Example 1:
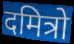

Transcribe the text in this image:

दमित्रो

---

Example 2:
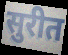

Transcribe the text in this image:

सुरीत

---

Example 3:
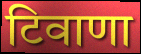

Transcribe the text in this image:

टिवाणा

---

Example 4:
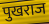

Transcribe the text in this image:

पुखराज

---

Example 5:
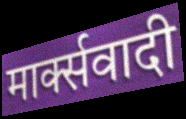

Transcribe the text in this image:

मार्क्सवादी